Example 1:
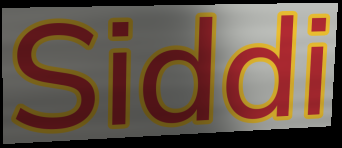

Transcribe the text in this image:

Siddi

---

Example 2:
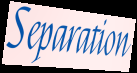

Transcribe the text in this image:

Separation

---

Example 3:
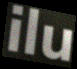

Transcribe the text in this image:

ilu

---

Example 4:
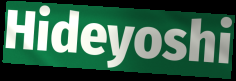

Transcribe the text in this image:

Hideyoshi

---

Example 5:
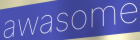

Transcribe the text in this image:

awasome